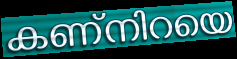
കണ്നിറയെ